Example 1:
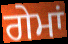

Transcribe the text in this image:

ਗੇਮਾਂ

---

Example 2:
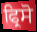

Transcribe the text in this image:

ਫ੍ਰਿਸੋ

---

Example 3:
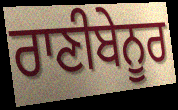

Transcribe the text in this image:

ਰਾਣੀਬੇਨੂਰ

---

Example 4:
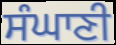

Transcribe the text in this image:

ਸੰਘਾਣੀ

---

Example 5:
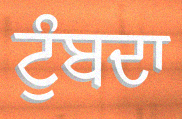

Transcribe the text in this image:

ਟੁੰਬਦਾ